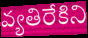
వ్యతిరేకిని